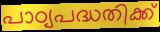
പാഠ്യപദ്ധതിക്ക്